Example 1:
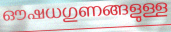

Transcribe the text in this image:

ഔഷധഗുണങ്ങളുള്ള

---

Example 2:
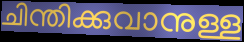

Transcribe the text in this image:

ചിന്തിക്കുവാനുള്ള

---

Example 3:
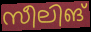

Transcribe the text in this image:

സീലിങ്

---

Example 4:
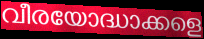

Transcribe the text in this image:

വീരയോദ്ധാക്കളെ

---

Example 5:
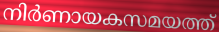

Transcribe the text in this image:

നിർണായകസമയത്ത്